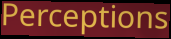
Perceptions